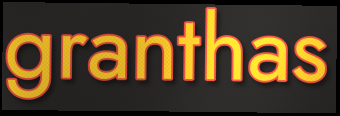
granthas